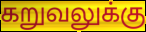
கறுவலுக்கு